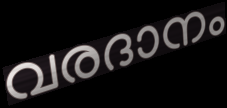
വരദാനം